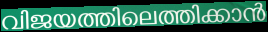
വിജയത്തിലെത്തിക്കാൻ